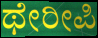
ಥೇರೀಪಿ